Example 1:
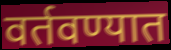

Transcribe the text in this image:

वर्तवण्यात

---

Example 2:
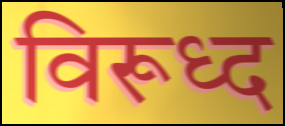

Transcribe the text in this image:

विरूध्द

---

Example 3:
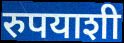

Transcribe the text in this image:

रुपयाशी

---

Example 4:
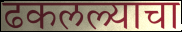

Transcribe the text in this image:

ढकलल्याचा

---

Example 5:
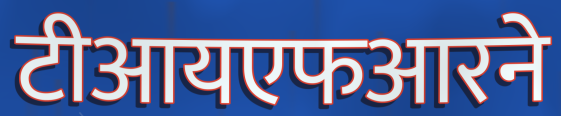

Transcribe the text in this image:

टीआयएफआरने